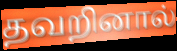
தவறினால்